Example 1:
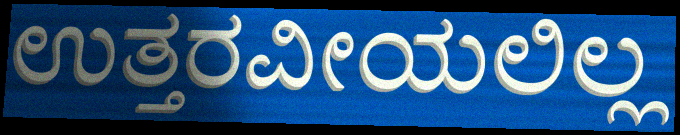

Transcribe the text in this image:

ಉತ್ತರವೀಯಲಿಲ್ಲ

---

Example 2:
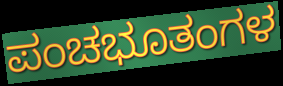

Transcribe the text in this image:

ಪಂಚಭೂತಂಗಳ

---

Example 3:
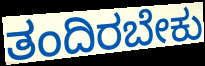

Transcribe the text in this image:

ತಂದಿರಬೇಕು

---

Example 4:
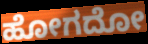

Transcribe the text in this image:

ಹೋಗದೋ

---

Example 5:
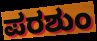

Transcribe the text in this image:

ಪರಶುಂ